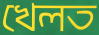
খেলত